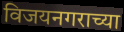
विजयनगराच्या